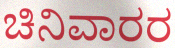
ಚಿನಿವಾರರ